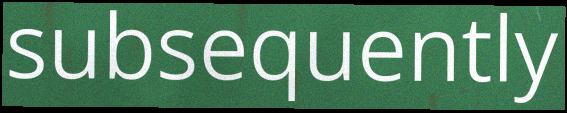
subsequently